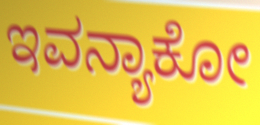
ಇವನ್ಯಾಕೋ